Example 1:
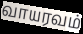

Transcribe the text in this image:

வாயரவம்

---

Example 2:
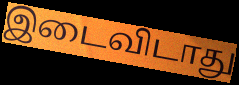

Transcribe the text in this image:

இடைவிடாது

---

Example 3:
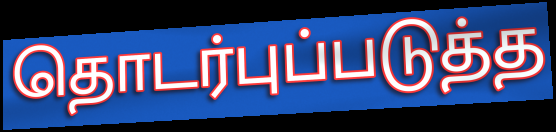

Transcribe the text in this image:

தொடர்புப்படுத்த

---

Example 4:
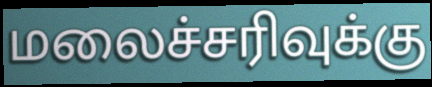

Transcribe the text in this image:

மலைச்சரிவுக்கு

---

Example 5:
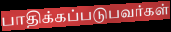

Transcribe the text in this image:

பாதிக்கப்படுபவர்கள்